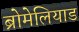
ब्रोमेलियाड